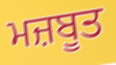
ਮਜ਼ਬੂਤ